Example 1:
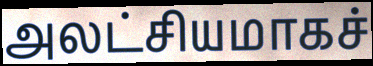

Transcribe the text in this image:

அலட்சியமாகச்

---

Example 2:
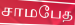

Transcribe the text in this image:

சாமபேத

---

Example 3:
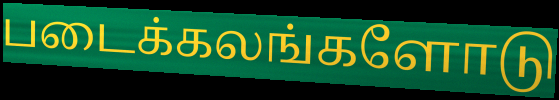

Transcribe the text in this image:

படைக்கலங்களோடு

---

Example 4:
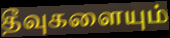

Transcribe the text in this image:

தீவுகளையும்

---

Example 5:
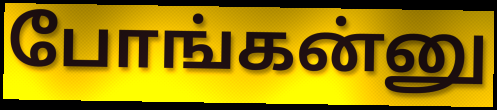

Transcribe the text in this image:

போங்கன்னு